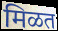
मिळत